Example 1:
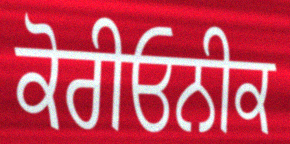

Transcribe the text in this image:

ਕੋਰੀਓਨੀਕ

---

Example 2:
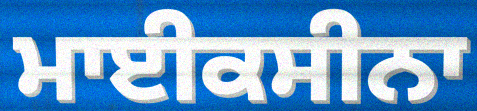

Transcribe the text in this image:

ਮਾਈਕਸੀਨਾ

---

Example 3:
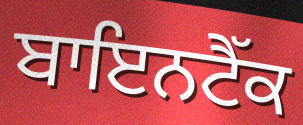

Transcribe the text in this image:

ਬਾਇਨਟੈੱਕ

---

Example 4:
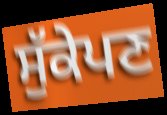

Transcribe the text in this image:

ਸੁੱਕੇਪਣ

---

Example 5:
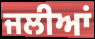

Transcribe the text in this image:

ਜਲੀਆਂ